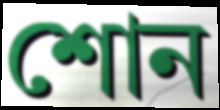
শোন